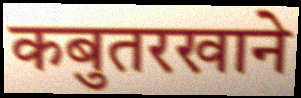
कबुतरखाने